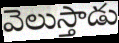
వెలుస్తాడు